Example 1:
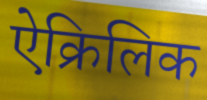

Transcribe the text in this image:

ऐक्रिलिक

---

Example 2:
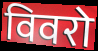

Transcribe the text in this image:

विवरो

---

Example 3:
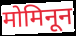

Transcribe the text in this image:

मोमिनून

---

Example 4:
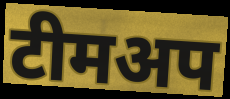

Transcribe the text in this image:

टीमअप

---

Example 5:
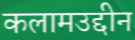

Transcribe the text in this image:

कलामउद्दीन